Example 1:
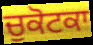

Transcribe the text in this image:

ਚੁਕੋਟਕਾ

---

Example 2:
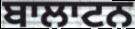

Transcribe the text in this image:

ਬਾਲਾਟਨ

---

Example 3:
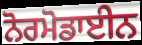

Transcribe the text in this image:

ਨੋਰਮੋਡਾਈਨ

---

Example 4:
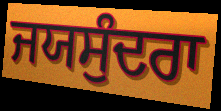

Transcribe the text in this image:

ਜਯਸੁੰਦਰਾ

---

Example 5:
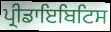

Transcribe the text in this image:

ਪ੍ਰੀਡਾਇਬਿਟਿਸ